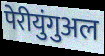
पेरीयुंगुअल